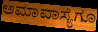
ಅಮಾವಾಸ್ಯೆಗೂ